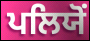
ਪਲਿਯੋਂ